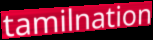
tamilnation